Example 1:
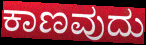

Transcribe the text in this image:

ಕಾಣವುದು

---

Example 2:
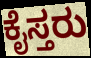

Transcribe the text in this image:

ಕೈಸ್ತರು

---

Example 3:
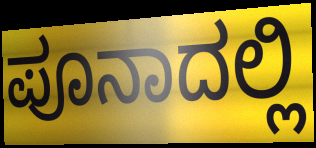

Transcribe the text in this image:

ಪೂನಾದಲ್ಲಿ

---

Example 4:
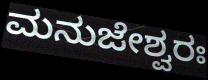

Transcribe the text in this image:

ಮನುಜೇಶ್ವರಃ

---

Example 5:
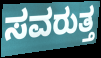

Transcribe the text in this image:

ಸವರುತ್ತ